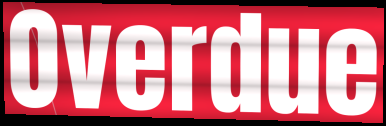
Overdue